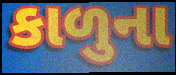
કાળુના